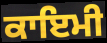
ਕਾਇਮੀ